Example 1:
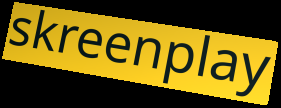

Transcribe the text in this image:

skreenplay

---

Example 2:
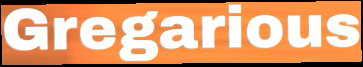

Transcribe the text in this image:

Gregarious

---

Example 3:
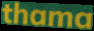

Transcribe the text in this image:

thama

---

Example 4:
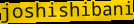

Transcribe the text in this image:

joshishibani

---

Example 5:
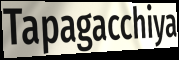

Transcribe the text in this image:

Tapagacchiya